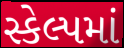
સ્કેલ્પમાં